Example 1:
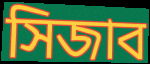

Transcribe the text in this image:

সিজাব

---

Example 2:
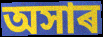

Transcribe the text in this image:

অসাৰ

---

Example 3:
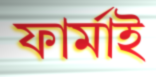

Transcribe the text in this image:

ফাৰ্মাই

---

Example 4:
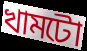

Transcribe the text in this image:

খামটো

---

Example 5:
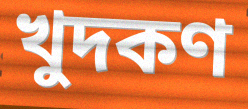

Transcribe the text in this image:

খুদকণ